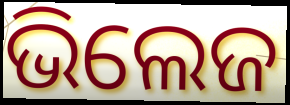
ଭିଲେଜ